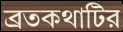
ব্রতকথাটির